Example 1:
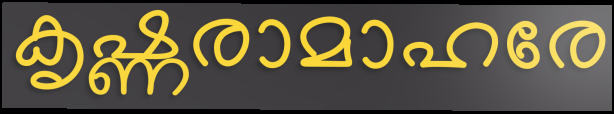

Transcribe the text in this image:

കൃഷ്ണരാമാഹരേ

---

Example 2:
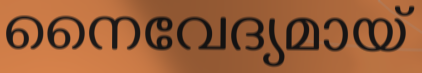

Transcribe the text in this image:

നൈവേദ്യമായ്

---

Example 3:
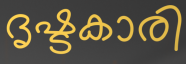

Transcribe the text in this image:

ദൃഷ്ടകാരി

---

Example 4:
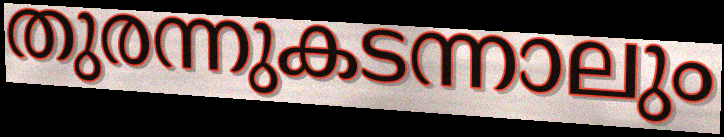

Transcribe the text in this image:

തുരന്നുകടന്നാലും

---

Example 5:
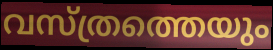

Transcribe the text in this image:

വസ്ത്രത്തെയും